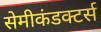
सेमीकंडक्टर्स